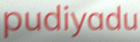
pudiyadu